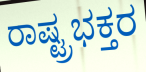
ರಾಷ್ಟ್ರಭಕ್ತರ